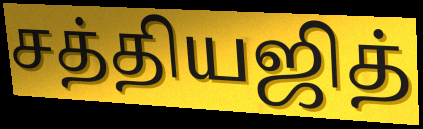
சத்தியஜித்